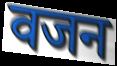
वजन